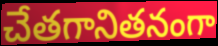
చేతగానితనంగా